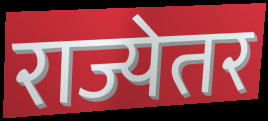
राज्येतर